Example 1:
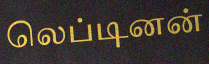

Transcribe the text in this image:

லெப்டினன்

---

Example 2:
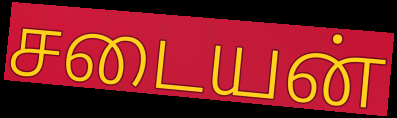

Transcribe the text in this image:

சடையன்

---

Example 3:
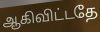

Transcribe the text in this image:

ஆகிவிட்டதே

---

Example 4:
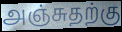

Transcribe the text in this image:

அஞ்சுதற்கு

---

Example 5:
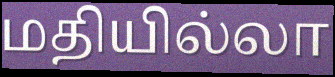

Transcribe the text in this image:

மதியில்லா